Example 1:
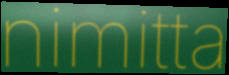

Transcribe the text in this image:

nimitta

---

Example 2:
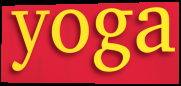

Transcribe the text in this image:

yoga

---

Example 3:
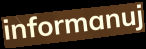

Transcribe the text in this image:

informanuj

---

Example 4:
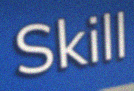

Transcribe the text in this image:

Skill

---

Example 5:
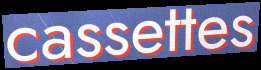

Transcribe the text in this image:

cassettes